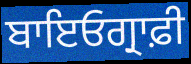
ਬਾਇਓਗ੍ਰਾਫ਼ੀ